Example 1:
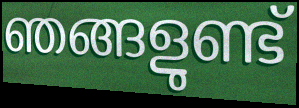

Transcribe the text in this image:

ഞങ്ങളുണ്ട്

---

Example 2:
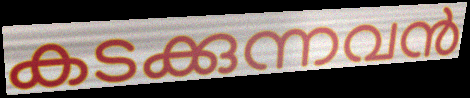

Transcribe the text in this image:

കടക്കുന്നവൻ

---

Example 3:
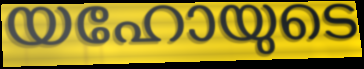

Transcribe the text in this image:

യഹോയുടെ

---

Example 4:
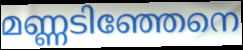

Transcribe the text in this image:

മണ്ണടിഞ്ഞേനെ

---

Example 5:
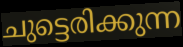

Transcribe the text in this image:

ചുട്ടെരിക്കുന്ന